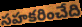
సహకరించేది